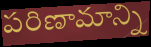
పరిణామాన్ని